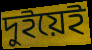
দুইয়েই